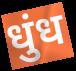
धुंध